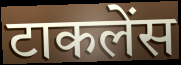
टाकलेंस